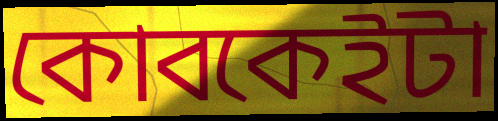
কোবকেইটা